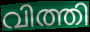
വിത്തി